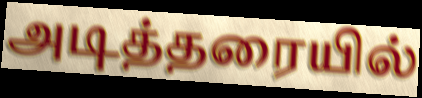
அடித்தரையில்